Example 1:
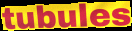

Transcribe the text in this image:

tubules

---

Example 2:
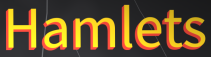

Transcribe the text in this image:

Hamlets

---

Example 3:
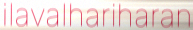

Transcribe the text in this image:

ilavalhariharan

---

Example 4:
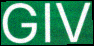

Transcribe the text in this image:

GIV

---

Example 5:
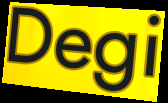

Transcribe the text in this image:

Degi